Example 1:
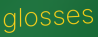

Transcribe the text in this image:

glosses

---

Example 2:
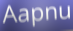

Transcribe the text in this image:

Aapnu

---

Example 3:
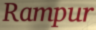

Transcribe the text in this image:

Rampur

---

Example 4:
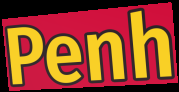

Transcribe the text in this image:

Penh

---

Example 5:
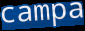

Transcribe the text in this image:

campa